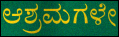
ಆಶ್ರಮಗಳೇ